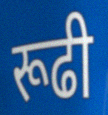
रूढी